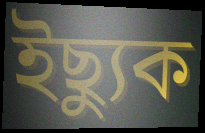
ইছ্যুক